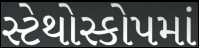
સ્ટેથોસ્કોપમાં